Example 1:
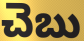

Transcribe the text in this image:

చెబు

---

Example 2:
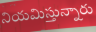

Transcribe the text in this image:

నియమిస్తున్నారు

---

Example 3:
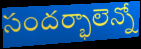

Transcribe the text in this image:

సందర్భాలెన్నో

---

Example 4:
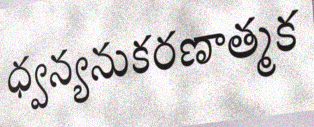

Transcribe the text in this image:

ధ్వన్యనుకరణాత్మక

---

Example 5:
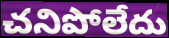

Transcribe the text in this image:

చనిపోలేదు